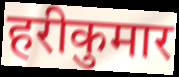
हरीकुमार